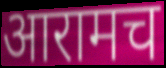
आरामच